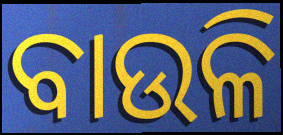
ବାଉଳି